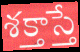
శక్తాస్తే